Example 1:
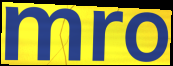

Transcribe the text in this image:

mro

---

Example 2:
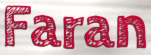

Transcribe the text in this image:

Faran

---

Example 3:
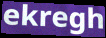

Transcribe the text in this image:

ekregh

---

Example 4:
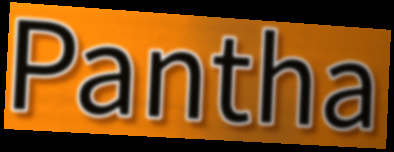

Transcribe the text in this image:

Pantha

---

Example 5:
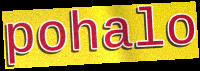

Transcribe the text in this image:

pohalo